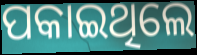
ପକାଇଥିଲେ